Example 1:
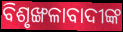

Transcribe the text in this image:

ବିଶୃଙ୍ଖଳାବାଦୀଙ୍କ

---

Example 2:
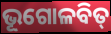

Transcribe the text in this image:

ଭୂଗୋଳବିତ୍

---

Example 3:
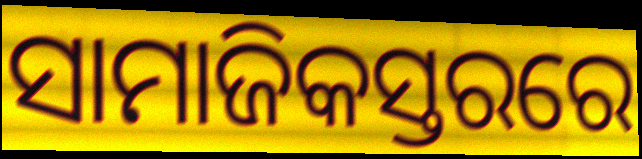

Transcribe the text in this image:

ସାମାଜିକସ୍ତରରେ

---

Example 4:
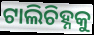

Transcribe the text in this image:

ଟାଲିଚିହ୍ନକୁ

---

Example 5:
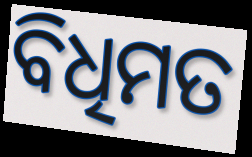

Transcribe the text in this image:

ବିଧିମତ